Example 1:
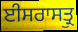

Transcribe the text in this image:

ਈਸਰਾਸਤ੍ਰੁ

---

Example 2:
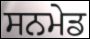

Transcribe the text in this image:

ਸਨਮੇਡ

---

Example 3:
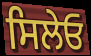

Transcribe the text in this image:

ਸਿਲੇਓ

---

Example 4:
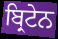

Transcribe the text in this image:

ਬ੍ਰਿਟੇਨ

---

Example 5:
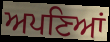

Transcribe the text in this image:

ਅਪਣਿਆਂ